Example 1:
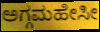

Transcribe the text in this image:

ಅಗ್ಗಮಹೇಸೀ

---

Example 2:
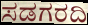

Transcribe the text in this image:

ಸಡಗರದಿ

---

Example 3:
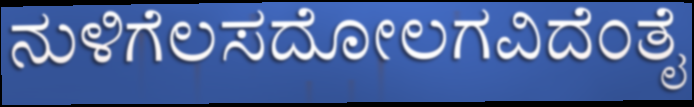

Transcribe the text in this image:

ನುಳಿಗೆಲಸದೋಲಗವಿದೆಂತೈ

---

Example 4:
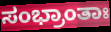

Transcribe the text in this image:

ಸಂಭ್ರಾಂತಾಃ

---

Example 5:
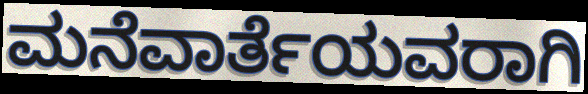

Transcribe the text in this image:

ಮನೆವಾರ್ತೆಯವರಾಗಿ